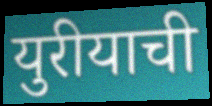
युरीयाची